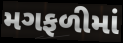
મગફળીમાં